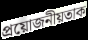
প্ৰয়োজনীয়তাক